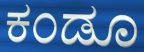
ಕಂಡೂ